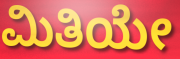
ಮಿತಿಯೇ